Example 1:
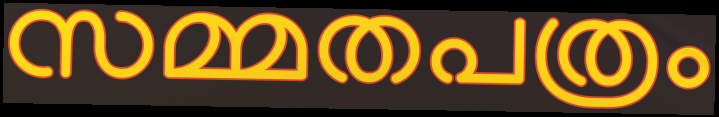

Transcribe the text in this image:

സമ്മതപത്രം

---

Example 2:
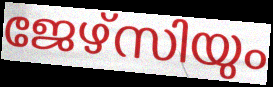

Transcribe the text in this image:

ജേഴ്സിയും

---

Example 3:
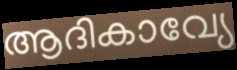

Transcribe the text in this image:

ആദികാവ്യേ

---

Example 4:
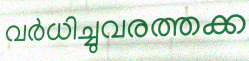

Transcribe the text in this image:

വർധിച്ചുവരത്തക്ക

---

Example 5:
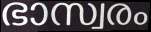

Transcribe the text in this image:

ഭാസ്വരം